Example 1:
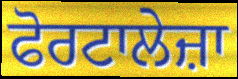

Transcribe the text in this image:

ਫੋਰਟਾਲੇਜ਼ਾ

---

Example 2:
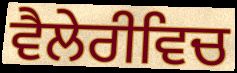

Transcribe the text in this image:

ਵੈਲੇਰੀਵਿਚ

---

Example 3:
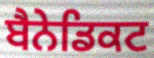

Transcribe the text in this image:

ਬੈਨੇਡਿਕਟ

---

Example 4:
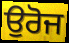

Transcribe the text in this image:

ਉਰੋਜ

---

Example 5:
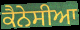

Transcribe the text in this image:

ਕੈਨੇਸੀਆ